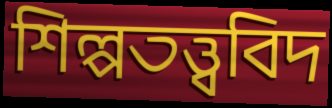
শিল্পতত্ত্ববিদ